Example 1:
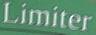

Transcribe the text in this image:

Limiter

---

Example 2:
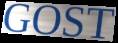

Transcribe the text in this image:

GOST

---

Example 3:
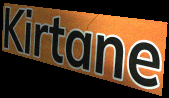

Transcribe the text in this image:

Kirtane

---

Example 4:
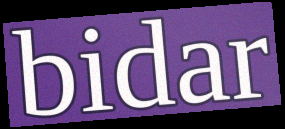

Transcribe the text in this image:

bidar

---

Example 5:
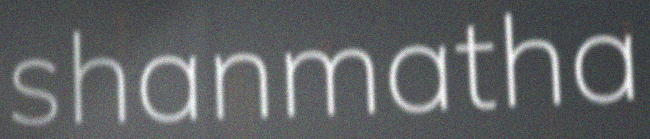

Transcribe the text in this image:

shanmatha